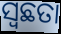
ସ୍ବଛତା